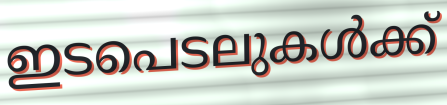
ഇടപെടലുകൾക്ക്